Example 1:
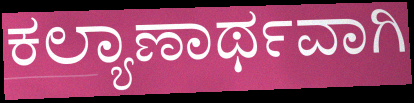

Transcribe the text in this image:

ಕಲ್ಯಾಣಾರ್ಥವಾಗಿ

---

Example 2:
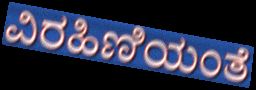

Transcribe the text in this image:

ವಿರಹಿಣಿಯಂತೆ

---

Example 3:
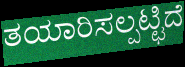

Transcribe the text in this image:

ತಯಾರಿಸಲ್ಪಟ್ಟಿದೆ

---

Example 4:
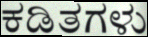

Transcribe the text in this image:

ಕಡಿತಗಳು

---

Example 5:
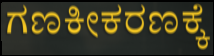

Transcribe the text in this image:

ಗಣಕೀಕರಣಕ್ಕೆ